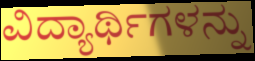
ವಿದ್ಯಾರ್ಥಿಗಳನ್ನು